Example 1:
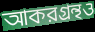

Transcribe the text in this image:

আকরগ্রন্থও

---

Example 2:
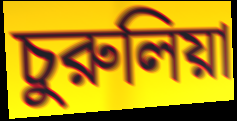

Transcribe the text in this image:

চুরুলিয়া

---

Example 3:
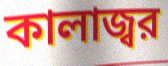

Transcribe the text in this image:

কালাজ্বর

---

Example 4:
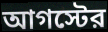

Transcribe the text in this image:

আগস্টের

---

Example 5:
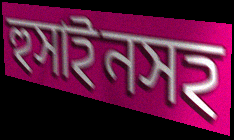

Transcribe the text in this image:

হুসাইনসহ